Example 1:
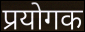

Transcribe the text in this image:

प्रयोगक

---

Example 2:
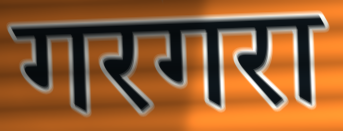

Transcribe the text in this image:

गरगरा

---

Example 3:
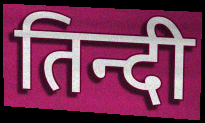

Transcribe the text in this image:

तिन्दी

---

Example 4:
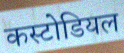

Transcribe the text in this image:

कस्टोडियल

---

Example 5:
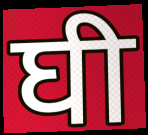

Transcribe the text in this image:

घी